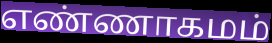
எண்ணாகமம்